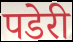
पडेरी